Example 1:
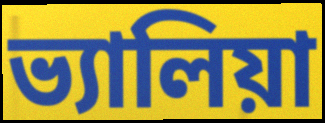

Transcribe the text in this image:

ভ্যালিয়া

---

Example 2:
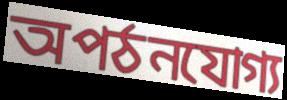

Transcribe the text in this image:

অপঠনযোগ্য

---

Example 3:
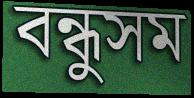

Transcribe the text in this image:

বন্ধুসম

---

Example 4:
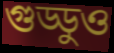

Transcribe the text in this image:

গুড্ডুও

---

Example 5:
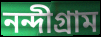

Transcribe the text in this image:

নন্দীগ্রাম